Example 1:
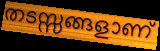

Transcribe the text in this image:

തടസ്സങ്ങളാണ്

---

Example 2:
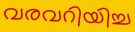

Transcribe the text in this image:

വരവറിയിച്ച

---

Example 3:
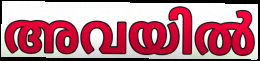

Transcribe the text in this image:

അവയിൽ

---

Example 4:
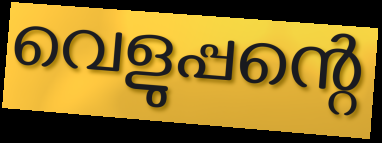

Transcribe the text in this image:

വെളുപ്പന്റെ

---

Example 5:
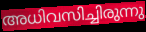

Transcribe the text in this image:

അധിവസിച്ചിരുന്നു